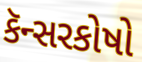
કૅન્સરકોષો